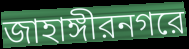
জাহাঙ্গীরনগরে